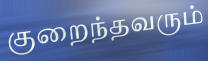
குறைந்தவரும்